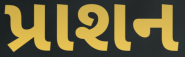
પ્રાશન